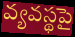
వ్యవస్థపై